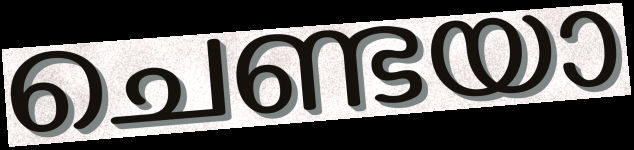
ചെണ്ടയാ